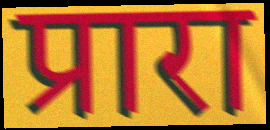
प्रारा